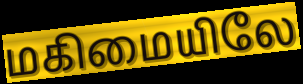
மகிமையிலே